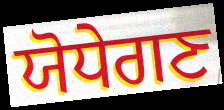
ਯੋਧੇਗਣ